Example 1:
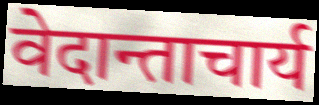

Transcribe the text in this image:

वेदान्ताचार्य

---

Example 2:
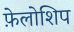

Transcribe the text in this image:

फ़ेलोशिप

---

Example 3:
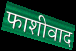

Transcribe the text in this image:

फाशीवाद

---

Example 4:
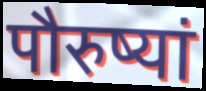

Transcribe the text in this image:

पौरुष्यां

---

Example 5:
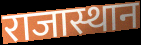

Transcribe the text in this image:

राजास्थान